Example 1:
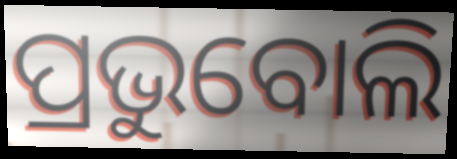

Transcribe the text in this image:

ପ୍ରଭୁବୋଲି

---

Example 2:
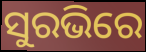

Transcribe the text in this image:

ସୁରଭିରେ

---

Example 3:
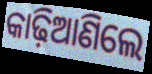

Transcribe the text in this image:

କାଢ଼ିଆଣିଲେ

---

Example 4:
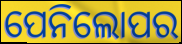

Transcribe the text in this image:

ପେନିଲୋପର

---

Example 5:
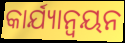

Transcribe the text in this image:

କାର୍ଯ୍ୟାନ୍ୱୟନ